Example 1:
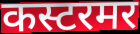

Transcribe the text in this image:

कस्टरमर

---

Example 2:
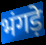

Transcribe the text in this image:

भंगड़े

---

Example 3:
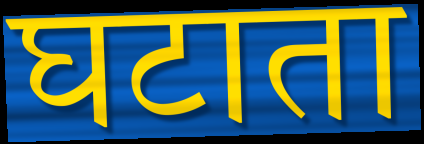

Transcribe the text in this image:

घटाता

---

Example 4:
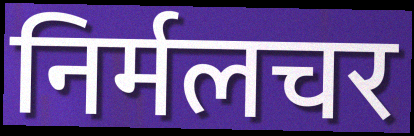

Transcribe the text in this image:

निर्मलचर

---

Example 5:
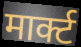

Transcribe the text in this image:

मार्क्ट